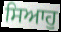
ਸਿਆਹੁ